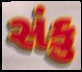
સંકુ